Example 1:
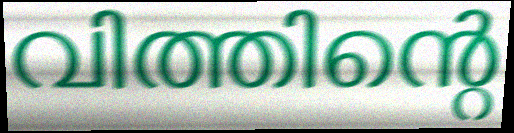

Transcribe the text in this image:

വിത്തിന്റെ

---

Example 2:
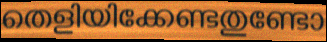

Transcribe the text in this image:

തെളിയിക്കേണ്ടതുണ്ടോ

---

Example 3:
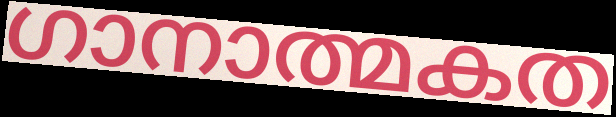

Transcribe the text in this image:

ഗാനാത്മകത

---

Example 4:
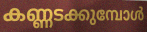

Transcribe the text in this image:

കണ്ണടക്കുമ്പോൾ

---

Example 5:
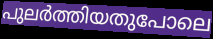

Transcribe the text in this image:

പുലർത്തിയതുപോലെ